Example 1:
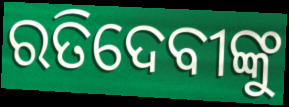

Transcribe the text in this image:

ରତିଦେବୀଙ୍କୁ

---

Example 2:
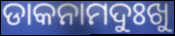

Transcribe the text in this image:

ଡାକନାମଦୁଃଖୁ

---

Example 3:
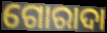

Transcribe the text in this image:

ଗୋରାଦା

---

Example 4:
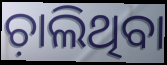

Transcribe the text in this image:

ଚ଼ାଲିଥିବା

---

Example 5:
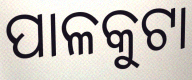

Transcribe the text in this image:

ପାଳକୁଟା